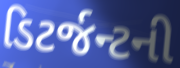
ડિટર્જન્ટની